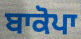
ਬਾਕੋਪਾ